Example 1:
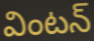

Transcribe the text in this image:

వింటన్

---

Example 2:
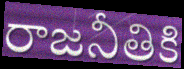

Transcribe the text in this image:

రాజనీతికి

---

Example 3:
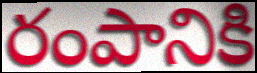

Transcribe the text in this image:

రంపానికి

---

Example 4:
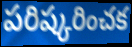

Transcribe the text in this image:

పరిష్కరించక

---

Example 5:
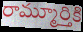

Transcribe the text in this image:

రామ్మూర్తికి